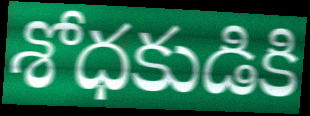
శోధకుడికి